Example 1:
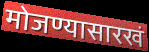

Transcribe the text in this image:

मोजण्यासारखं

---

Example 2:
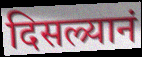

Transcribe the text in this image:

दिसल्यानं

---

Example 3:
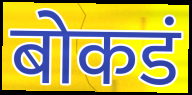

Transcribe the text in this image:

बोकडं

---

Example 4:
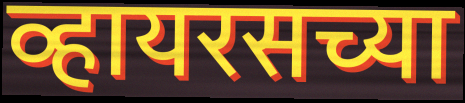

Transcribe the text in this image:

व्हायरसच्या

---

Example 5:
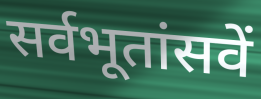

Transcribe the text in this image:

सर्वभूतांसवें